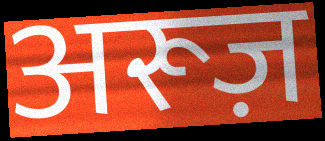
अरूज़